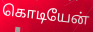
கொடியேன்